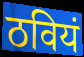
ठवियं